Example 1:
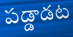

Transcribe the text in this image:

పడ్డాడట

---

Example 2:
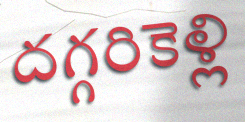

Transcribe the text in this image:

దగ్గరికెళ్లి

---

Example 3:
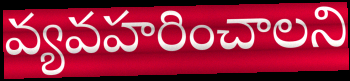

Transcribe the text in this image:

వ్యవహరించాలని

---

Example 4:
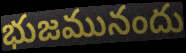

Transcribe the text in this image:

భుజమునందు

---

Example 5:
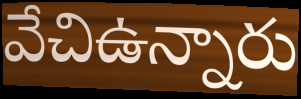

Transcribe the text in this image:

వేచిఉన్నారు